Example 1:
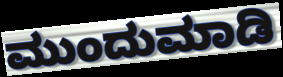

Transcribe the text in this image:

ಮುಂದುಮಾಡಿ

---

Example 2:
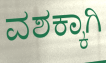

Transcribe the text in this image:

ವಶಕ್ಕಾಗಿ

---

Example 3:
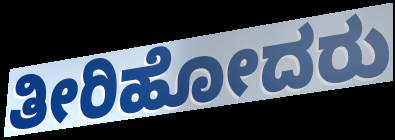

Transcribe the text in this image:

ತೀರಿಹೋದರು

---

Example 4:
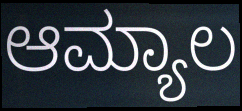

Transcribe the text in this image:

ಆಮ್ಯಾಲ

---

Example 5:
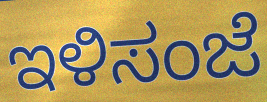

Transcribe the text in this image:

ಇಳಿಸಂಜೆ